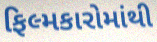
ફિલ્મકારોમાંથી